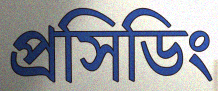
প্রসিডিং